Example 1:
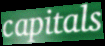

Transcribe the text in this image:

capitals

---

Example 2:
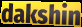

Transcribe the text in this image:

dakshin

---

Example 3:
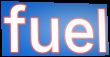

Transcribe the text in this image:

fuel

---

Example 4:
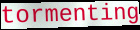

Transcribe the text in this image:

tormenting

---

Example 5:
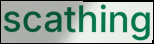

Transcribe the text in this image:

scathing